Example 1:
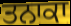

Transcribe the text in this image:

ਤਨਾਕਾ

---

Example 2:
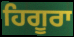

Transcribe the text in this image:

ਹਿਗੂਰਾ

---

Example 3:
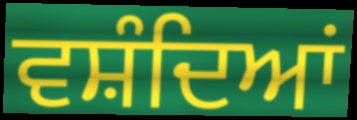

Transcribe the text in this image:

ਵਸ਼ੰਦਿਆਂ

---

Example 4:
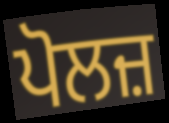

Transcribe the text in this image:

ਪੋਲਜ਼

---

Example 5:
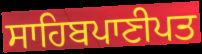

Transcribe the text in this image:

ਸਾਹਿਬਪਾਣੀਪਤ